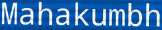
Mahakumbh